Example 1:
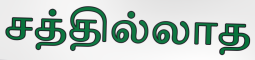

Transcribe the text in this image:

சத்தில்லாத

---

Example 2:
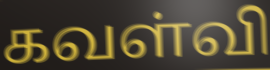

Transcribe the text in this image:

கவள்வி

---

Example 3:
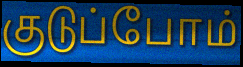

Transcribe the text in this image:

குடுப்போம்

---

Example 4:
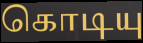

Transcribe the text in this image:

கொடியு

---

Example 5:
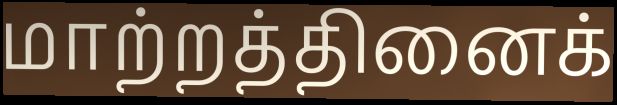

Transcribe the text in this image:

மாற்றத்தினைக்